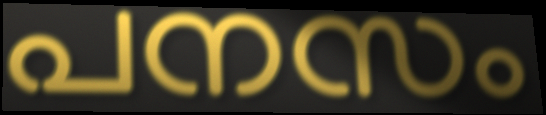
പനസം